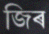
জিৰ